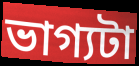
ভাগ্যটা